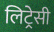
लिट्रेसी